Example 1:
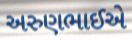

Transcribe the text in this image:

અરુણભાઈએ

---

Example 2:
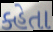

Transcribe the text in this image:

ક્હેતા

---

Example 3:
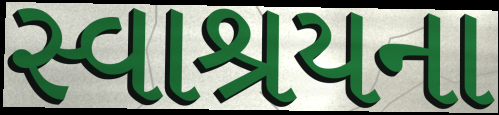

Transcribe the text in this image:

સ્વાશ્રયના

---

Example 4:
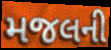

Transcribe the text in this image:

મજલની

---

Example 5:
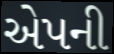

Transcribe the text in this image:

એપની